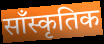
साँस्कृतिक